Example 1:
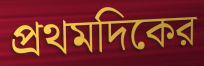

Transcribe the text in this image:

প্রথমদিকের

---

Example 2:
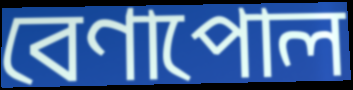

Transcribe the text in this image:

বেণাপোল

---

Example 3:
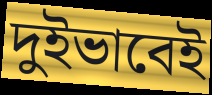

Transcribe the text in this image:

দুইভাবেই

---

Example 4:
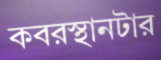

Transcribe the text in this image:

কবরস্থানটার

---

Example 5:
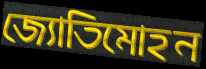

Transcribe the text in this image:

জ্যোতিমোহন